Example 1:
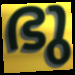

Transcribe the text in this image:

ഭു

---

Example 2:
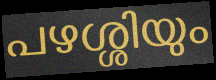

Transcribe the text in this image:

പഴശ്ശിയും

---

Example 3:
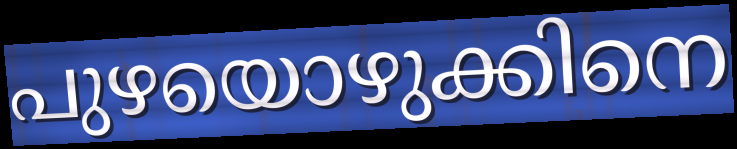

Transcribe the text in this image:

പുഴയൊഴുക്കിനെ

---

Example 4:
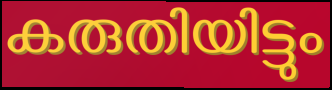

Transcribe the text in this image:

കരുതിയിട്ടും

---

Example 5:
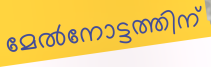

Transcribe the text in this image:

മേൽനോട്ടത്തിന്